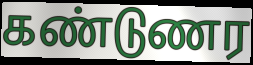
கண்டுணர